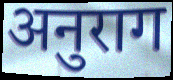
अनुराग